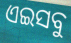
ଏଇସବୁ